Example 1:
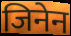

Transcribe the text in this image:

जिनेन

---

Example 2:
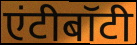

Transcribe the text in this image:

एंटीबॉटी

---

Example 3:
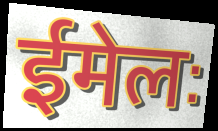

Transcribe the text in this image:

ईमेलः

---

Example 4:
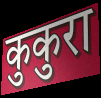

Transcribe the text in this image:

कुकुरा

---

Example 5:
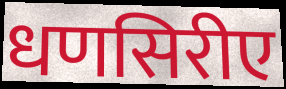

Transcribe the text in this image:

धणसिरीए